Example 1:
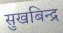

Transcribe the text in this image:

सुखबिन्द्र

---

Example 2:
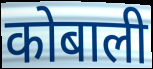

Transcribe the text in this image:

कोबाली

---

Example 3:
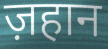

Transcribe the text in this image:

ज़हान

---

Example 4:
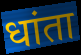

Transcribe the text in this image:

धांता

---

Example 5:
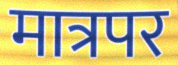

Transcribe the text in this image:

मात्रपर